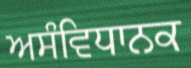
ਅਸੰਵਿਧਾਨਕ